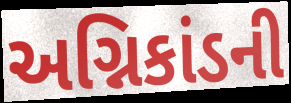
અગ્નિકાંડની